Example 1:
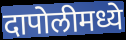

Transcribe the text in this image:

दापोलीमध्ये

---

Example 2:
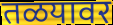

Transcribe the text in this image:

तळयावर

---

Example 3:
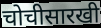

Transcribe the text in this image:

चोचीसारखी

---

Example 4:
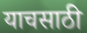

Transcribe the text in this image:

याचसाठी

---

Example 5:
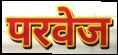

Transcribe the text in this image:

परवेज